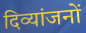
दिव्यांजनों